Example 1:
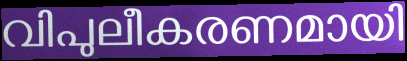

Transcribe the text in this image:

വിപുലീകരണമായി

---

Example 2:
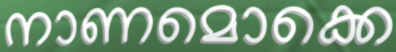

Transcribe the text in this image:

നാണമൊക്കെ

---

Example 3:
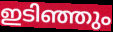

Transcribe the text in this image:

ഇടിഞ്ഞും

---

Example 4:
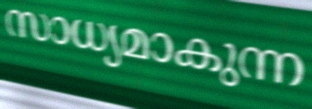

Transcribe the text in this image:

സാധ്യമാകുന്ന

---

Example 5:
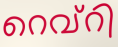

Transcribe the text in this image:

റെവ്റി